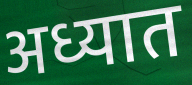
अध्यात